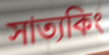
সাত্যকিং